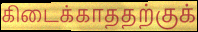
கிடைக்காததற்குக்